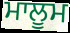
ਮਾਲੂਮ